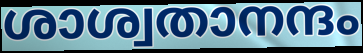
ശാശ്വതാനന്ദം